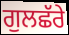
ਗੁਲਛੱਰੇ